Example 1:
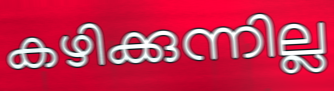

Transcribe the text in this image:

കഴിക്കുന്നില്ല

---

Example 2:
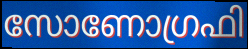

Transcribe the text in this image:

സോണോഗ്രഫി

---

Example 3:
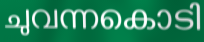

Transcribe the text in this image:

ചുവന്നകൊടി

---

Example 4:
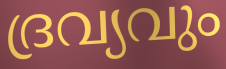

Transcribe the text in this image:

ദ്രവ്യവും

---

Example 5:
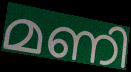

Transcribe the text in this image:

മണി